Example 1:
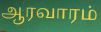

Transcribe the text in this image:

ஆரவாரம்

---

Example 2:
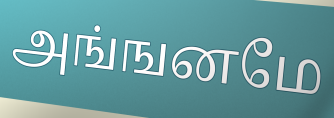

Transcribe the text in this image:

அங்ஙனமே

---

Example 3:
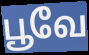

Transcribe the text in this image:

பூவே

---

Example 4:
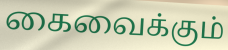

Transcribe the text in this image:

கைவைக்கும்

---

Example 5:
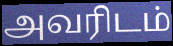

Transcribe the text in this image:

அவரிடம்